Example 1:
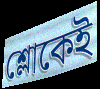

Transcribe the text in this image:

শ্লোকেই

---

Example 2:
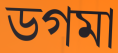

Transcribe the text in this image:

ডগমা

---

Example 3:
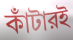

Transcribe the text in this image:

কাঁটারই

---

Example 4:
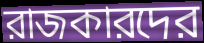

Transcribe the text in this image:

রাজকারদের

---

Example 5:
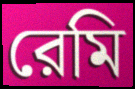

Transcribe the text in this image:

রেমি